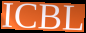
ICBL